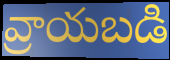
వ్రాయబడి